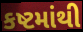
કષ્ટમાંથી